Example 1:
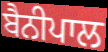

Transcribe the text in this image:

ਬੈਨੀਪਾਲ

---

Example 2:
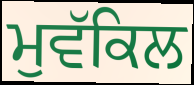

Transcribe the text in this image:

ਮੁਵੱਕਿਲ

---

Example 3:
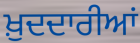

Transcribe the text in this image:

ਖ਼ੁਦਦਾਰੀਆਂ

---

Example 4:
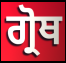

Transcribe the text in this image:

ਗ੍ਰੋਥ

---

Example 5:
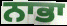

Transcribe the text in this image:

ਨਾਭਾ